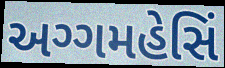
અગ્ગમહેસિં